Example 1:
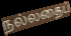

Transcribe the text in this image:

நல்லதைப்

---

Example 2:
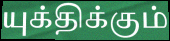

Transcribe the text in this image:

யுக்திக்கும்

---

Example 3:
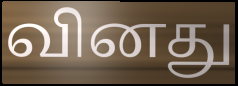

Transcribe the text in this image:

வினது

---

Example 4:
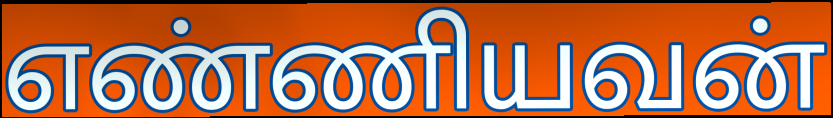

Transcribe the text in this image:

எண்ணியவன்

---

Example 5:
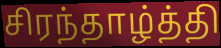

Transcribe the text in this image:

சிரந்தாழ்த்தி